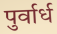
पुर्वार्ध